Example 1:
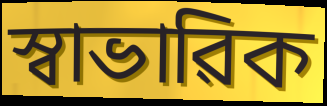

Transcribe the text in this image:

স্বাভাৱিক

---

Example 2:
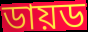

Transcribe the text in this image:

ডায়ড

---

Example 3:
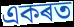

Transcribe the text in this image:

একৰত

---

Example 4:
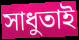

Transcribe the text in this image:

সাধুতাই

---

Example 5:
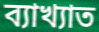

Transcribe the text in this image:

ব্যাখ্যাত